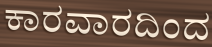
ಕಾರವಾರದಿಂದ